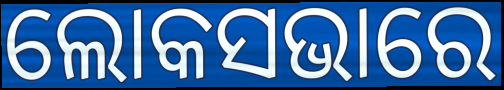
ଲୋକସଭାରେ